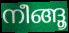
നീങ്ങൂ